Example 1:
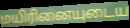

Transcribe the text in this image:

மயிரினையுடைய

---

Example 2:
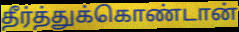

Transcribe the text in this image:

தீர்த்துக்கொண்டான்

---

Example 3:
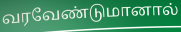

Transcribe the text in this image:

வரவேண்டுமானால்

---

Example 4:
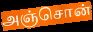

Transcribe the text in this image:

அஞ்சொன்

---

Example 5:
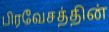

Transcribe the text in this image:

பிரவேசத்தின்